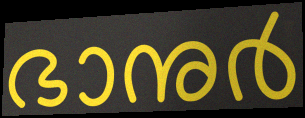
ഭാനുർ